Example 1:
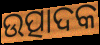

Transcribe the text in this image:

ଉତ୍ପାଦକ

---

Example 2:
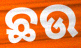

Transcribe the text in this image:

ଛଉ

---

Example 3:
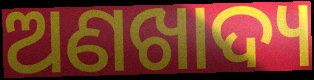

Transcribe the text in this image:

ଅଣଖାଦ୍ୟ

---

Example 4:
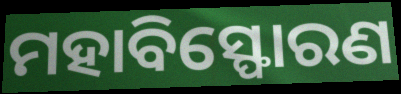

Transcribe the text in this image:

ମହାବିସ୍ଫୋରଣ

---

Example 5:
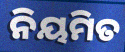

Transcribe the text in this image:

ନିୟମିତ